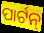
ପାର୍ଟନ୍